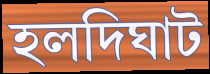
হলদিঘাট